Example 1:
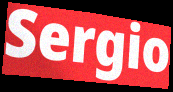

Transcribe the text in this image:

Sergio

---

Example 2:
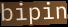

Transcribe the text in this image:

bipin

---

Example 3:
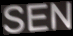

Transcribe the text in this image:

SEN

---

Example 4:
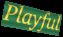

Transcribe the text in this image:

Playful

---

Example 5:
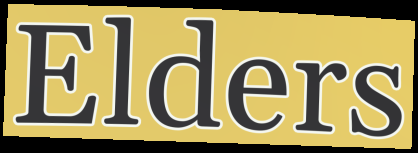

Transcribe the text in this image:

Elders